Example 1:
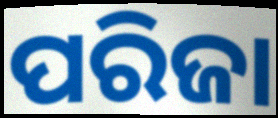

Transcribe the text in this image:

ପରିଜା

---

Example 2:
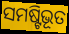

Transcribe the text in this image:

ସମଷ୍ଟିଭୂତ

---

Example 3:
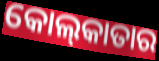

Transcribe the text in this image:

କୋଲ୍‌କାତାର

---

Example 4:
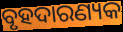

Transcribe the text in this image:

ବୃହଦାରଣ୍ୟକ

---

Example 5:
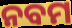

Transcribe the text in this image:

ନବମ